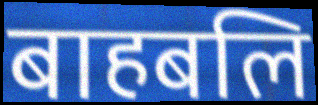
बाहबलि